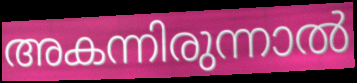
അകന്നിരുന്നാൽ